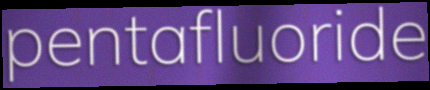
pentafluoride